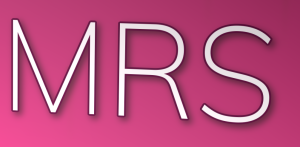
MRS